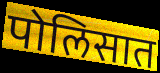
पोलिसात